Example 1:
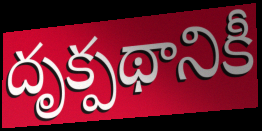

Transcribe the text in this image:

దృక్పథానికీ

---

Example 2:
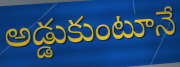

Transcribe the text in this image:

అడ్డుకుంటూనే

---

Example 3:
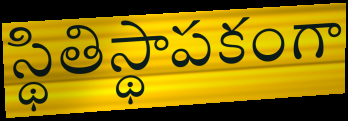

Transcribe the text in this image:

స్థితిస్థాపకంగా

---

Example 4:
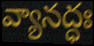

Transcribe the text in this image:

వ్యానద్ధః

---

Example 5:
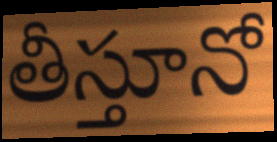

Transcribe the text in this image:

తీస్తూనో